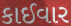
કાઈવાર